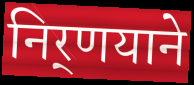
निर्णयाने